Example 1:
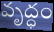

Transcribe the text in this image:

వృద్ధం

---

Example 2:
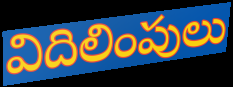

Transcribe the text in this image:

విదిలింపులు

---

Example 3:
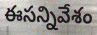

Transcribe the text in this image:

ఈసన్నివేశం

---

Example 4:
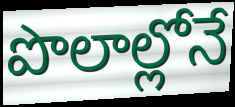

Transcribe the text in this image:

పొలాల్లోనే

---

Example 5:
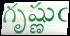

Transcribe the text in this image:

గృష్ణుఁ